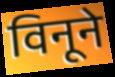
विनूने